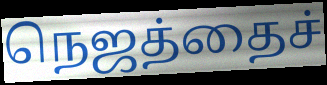
நெஜத்தைச்